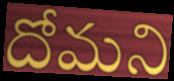
దోమని